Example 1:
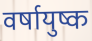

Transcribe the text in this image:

वर्षायुष्क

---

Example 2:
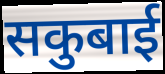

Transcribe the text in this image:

सकुबाई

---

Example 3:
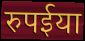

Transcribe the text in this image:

रुपईया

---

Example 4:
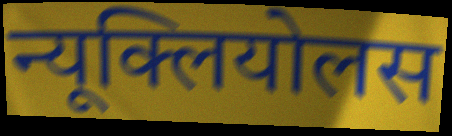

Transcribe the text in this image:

न्यूक्लियोलस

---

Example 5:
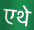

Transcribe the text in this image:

एथे